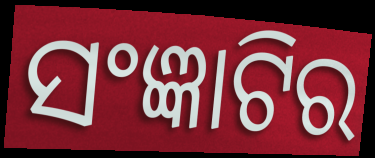
ସଂଜ୍ଞାଟିର